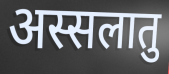
अस्सलातु